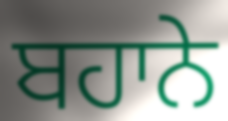
ਬਹਾਨੇ